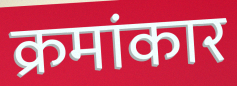
क्रमांकार